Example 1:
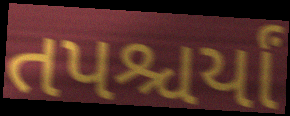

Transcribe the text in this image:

તપશ્ચર્યાં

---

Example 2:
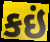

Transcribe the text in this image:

કઇં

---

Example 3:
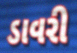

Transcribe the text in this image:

ડાવરી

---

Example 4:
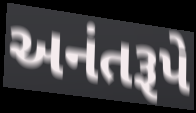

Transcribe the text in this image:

અનંતરૂપે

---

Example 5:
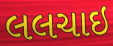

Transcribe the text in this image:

લલચાઇ